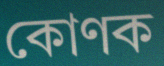
কোণক